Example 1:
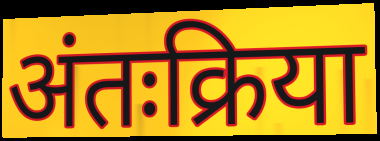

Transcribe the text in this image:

अंतःक्रिया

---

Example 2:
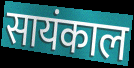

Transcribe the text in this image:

सायंकाल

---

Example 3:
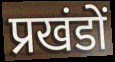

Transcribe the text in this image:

प्रखंडों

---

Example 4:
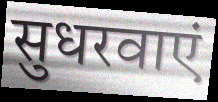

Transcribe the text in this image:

सुधरवाएं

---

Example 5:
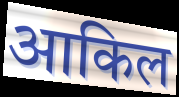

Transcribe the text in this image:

आकिल